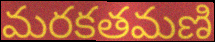
మరకతమణి